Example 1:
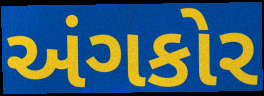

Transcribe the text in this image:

અંગકોર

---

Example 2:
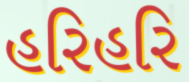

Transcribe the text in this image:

હરિહરિ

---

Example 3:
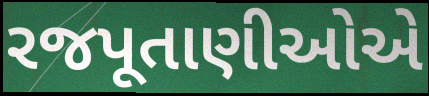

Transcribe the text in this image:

રજપૂતાણીઓએ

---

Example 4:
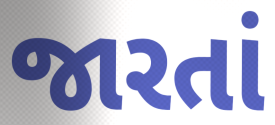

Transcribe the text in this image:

જારતાં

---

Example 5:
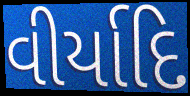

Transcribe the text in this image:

વીર્યાદિ